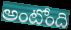
అంటోంది